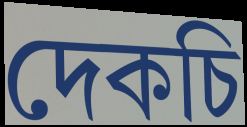
দেকচি